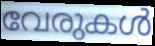
വേരുകൾ